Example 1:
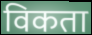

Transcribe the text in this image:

विकता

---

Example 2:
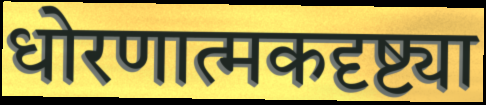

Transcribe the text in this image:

धोरणात्मकदृष्ट्या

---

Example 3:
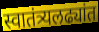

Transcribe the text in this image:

स्वातंत्र्यलढ्यांत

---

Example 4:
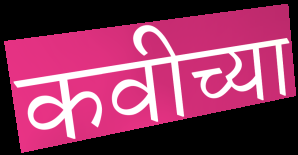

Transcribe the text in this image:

कवीच्या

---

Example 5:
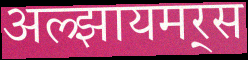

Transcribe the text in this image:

अल्झायमर्स